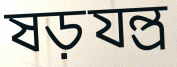
ষড়যন্ত্ৰ